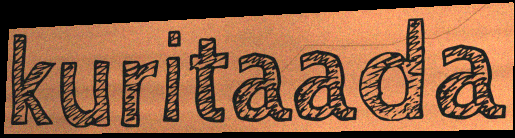
kuritaada